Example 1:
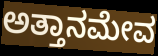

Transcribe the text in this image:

ಅತ್ತಾನಮೇವ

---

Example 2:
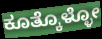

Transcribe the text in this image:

ಕೂತ್ಕೊಳ್ಳೋ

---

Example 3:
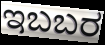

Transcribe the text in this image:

ಇಬಬರ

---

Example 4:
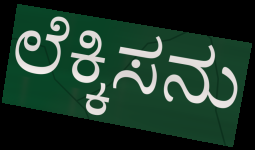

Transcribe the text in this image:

ಲೆಕ್ಕಿಸನು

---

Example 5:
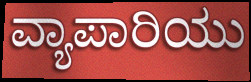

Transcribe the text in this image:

ವ್ಯಾಪಾರಿಯು